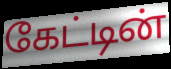
கேட்டின்